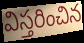
విస్తరించిన